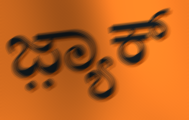
ಜ಼್ಯಾಕ್